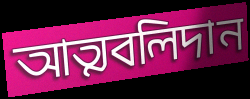
আত্মবলিদান